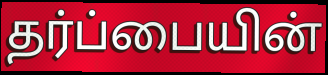
தர்ப்பையின்